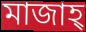
মাজাহ্